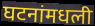
घटनांमधली